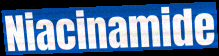
Niacinamide